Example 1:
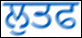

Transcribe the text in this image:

ਲੁਤਫ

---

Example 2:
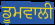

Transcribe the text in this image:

ਡੂਮਵਾਲੀ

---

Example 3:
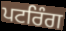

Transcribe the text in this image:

ਪਟਰਿੰਗ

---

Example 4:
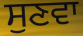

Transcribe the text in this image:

ਸੁਣਵਾ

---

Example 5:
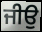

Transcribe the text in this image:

ਜੀਉ